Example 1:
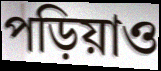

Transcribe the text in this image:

পড়িয়াও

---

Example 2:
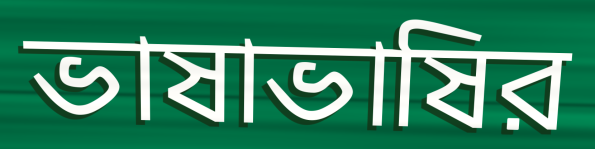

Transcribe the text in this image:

ভাষাভাষির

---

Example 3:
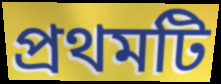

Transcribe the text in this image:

প্রথমটি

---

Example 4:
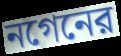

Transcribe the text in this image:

নগেনের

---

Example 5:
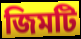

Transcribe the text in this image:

জিমটি